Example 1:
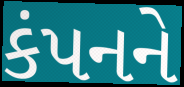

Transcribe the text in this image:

કંપનને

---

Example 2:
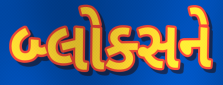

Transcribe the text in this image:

બ્લોક્સને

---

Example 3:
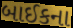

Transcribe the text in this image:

બાઈકના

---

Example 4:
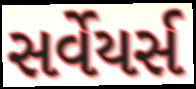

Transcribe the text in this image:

સર્વેયર્સ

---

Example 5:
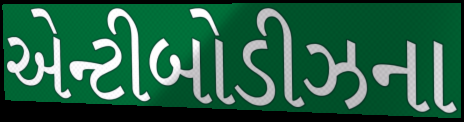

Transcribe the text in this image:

એન્ટીબોડીઝના